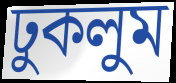
ঢুকলুম